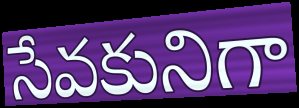
సేవకునిగా